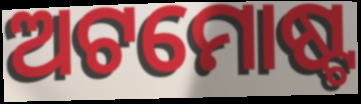
ଅଟମୋଷ୍ଟ